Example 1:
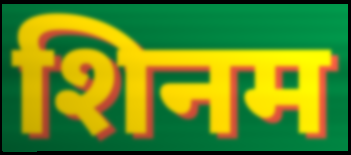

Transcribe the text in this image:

शिनम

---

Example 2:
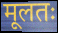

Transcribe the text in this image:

मूलतः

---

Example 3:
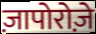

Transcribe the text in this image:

ज़ापोरोज़े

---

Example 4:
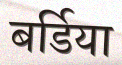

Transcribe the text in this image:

बर्डिया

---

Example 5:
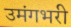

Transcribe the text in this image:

उमंगभरी